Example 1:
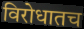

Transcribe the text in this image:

विरोधातच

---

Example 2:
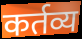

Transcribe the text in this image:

कर्तव्य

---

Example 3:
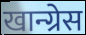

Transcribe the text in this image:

खान्ग्रेस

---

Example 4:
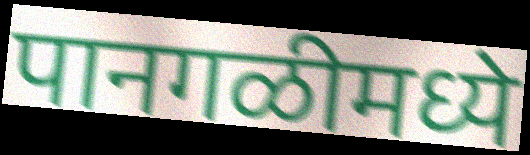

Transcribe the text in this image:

पानगळीमध्ये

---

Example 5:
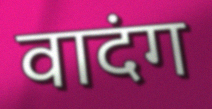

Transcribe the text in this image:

वादंग